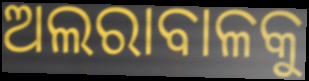
ଅଲରାବାଳକୁ